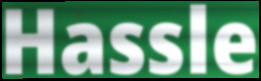
Hassle